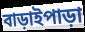
বাড়াইপাড়া